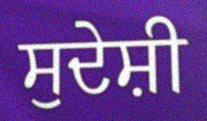
ਸੁਦੇਸ਼ੀ